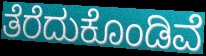
ತೆರೆದುಕೊಂಡಿವೆ